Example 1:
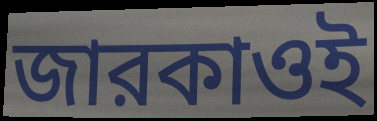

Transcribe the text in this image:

জারকাওই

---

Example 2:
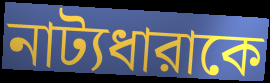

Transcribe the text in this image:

নাট্যধারাকে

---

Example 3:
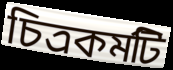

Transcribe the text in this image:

চিত্রকর্মটি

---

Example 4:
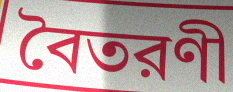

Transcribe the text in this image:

বৈতরণী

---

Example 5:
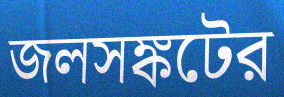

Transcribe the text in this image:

জলসঙ্কটের